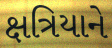
ક્ષત્રિયાને